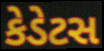
કેડેટસ